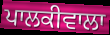
ਪਾਲਕੀਵਾਲਾ